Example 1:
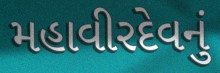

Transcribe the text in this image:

મહાવીરદેવનું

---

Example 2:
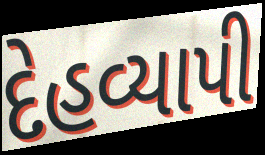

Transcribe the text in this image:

દેહવ્યાપી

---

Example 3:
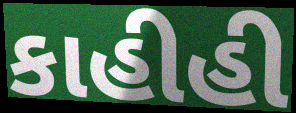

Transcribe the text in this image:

કાહીહી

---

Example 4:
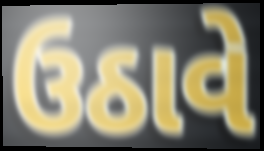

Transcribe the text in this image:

ઉઠાવે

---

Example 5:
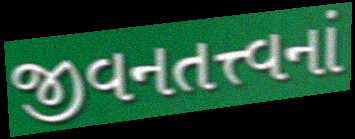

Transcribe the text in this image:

જીવનતત્ત્વનાં